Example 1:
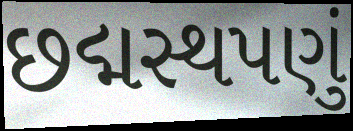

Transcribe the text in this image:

છદ્મસ્થપણું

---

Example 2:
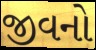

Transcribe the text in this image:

જીવનો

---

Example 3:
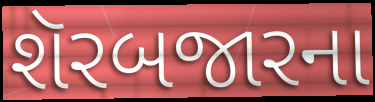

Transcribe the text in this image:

શૅરબજારના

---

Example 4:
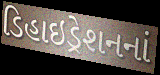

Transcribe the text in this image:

ડિહાઇડ્રેશનનાં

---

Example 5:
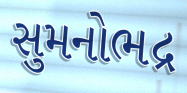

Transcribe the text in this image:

સુમનોભદ્ર